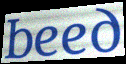
beed